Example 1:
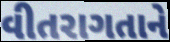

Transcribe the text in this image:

વીતરાગતાને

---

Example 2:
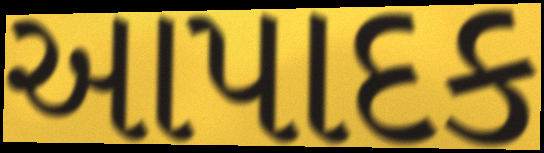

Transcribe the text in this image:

આપાદક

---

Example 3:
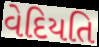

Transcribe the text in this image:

વેદિયતિ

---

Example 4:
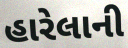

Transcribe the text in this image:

હારેલાની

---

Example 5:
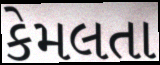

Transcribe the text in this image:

કેમલતા